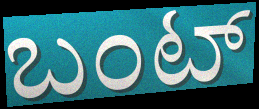
ಬಂಟ್